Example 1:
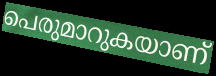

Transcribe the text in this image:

പെരുമാറുകയാണ്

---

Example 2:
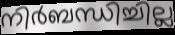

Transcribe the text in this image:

നിർബന്ധിച്ചില്ല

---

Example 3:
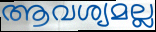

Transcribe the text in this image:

ആവശ്യമല്ല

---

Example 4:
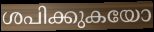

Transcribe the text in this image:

ശപിക്കുകയോ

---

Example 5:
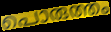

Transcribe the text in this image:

പൊരുത്തം